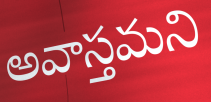
అవాస్తమని